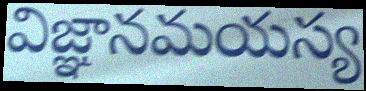
విజ్ఞానమయస్య